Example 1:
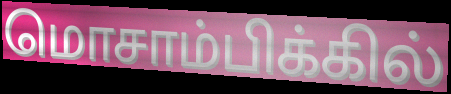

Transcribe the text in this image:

மொசாம்பிக்கில்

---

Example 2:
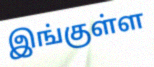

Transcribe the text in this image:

இங்குள்ள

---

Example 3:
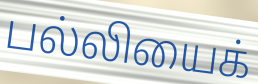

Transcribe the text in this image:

பல்லியைக்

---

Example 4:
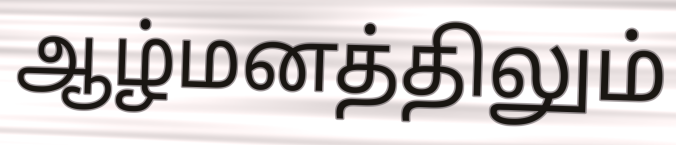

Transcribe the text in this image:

ஆழ்மனத்திலும்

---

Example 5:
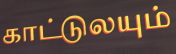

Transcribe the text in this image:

காட்டுலயும்